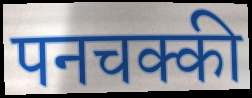
पनचक्की